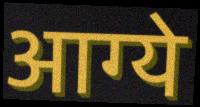
आग्ये